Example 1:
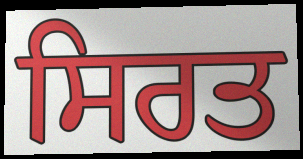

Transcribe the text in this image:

ਸਿਰਤ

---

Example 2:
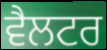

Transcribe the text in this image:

ਵੈਲਟਰ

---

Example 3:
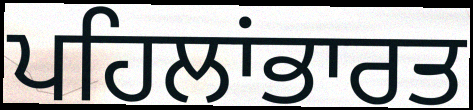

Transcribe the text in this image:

ਪਹਿਲਾਂਭਾਰਤ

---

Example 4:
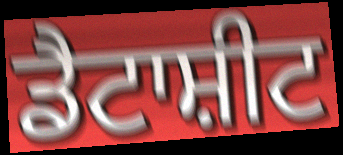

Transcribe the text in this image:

ਡੈਟਾਸ਼ੀਟ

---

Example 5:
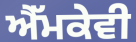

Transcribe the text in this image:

ਐੱਮਕੇਵੀ